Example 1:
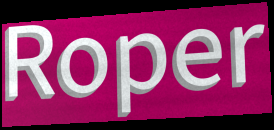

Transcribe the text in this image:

Roper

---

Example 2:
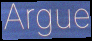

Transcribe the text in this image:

Argue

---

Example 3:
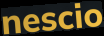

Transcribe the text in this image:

nescio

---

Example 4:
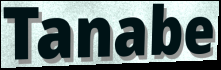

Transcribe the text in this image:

Tanabe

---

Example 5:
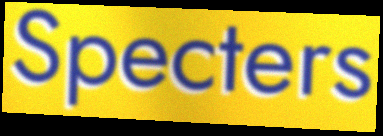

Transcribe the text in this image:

Specters